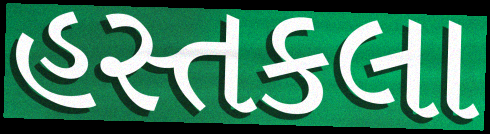
હસ્તકલા